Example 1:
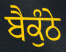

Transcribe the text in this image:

ਬੈਕੁੰਠੇ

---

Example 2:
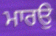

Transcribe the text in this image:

ਮਾਰਉ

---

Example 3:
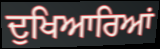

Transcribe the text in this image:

ਦੁਖਿਆਰਿਆਂ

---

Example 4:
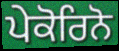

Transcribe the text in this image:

ਪੇਕੋਰਿਨੋ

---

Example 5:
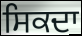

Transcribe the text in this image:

ਸਿਕਦਾ